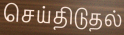
செய்திடுதல்